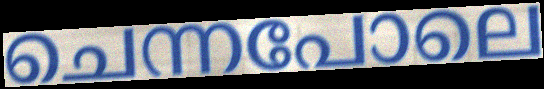
ചെന്നപോലെ